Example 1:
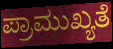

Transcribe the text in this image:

ಪ್ರಾಮುಖ್ಯತೆ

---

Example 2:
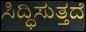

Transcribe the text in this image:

ಸಿದ್ಧಿಸುತ್ತದೆ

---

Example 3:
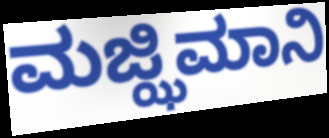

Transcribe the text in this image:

ಮಜ್ಝಿಮಾನಿ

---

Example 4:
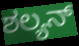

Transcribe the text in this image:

ಶಲ್ಯನ್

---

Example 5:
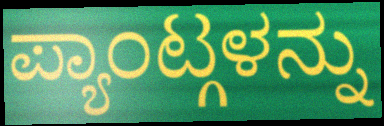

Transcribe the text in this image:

ಪ್ಯಾಂಟ್ಗಳನ್ನು